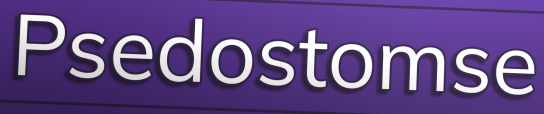
Psedostomse